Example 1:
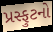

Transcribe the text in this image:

પ્રસ્ફુટનો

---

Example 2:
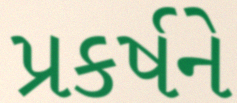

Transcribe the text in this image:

પ્રકર્ષને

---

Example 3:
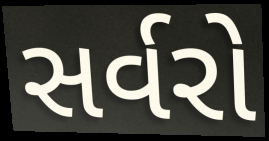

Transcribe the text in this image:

સર્વરો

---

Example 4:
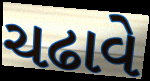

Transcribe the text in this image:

ચઢાવે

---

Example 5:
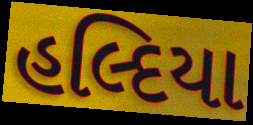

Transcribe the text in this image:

હલ્દિયા